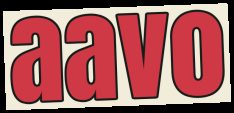
aavo